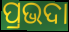
ପ୍ରଭଦା